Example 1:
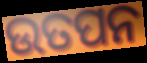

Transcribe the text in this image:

ଉତପନ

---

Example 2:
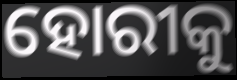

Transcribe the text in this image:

ହୋରୀକୁ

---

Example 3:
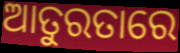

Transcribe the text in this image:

ଆତୁରତାରେ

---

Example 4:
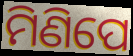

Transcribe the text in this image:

ମିଣିପେ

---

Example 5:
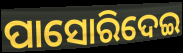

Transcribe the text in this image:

ପାସୋରିଦେଇ